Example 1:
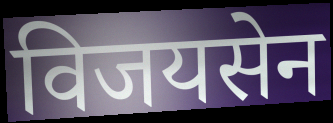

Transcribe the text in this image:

विजयसेन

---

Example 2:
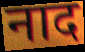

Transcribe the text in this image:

नाद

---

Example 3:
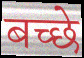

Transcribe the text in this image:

बच्छे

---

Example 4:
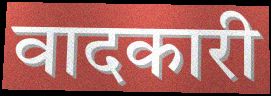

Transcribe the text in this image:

वादकारी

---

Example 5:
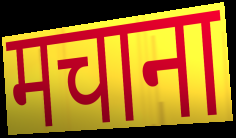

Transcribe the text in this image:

मचाना